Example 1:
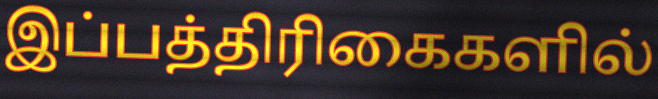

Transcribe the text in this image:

இப்பத்திரிகைகளில்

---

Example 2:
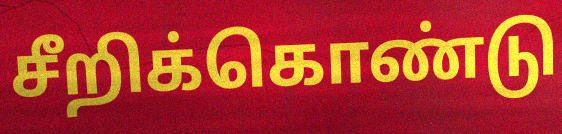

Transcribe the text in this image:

சீறிக்கொண்டு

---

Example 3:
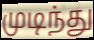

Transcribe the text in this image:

முடிந்து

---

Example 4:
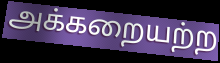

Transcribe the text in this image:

அக்கறையற்ற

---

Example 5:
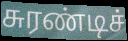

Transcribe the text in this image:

சுரண்டிச்